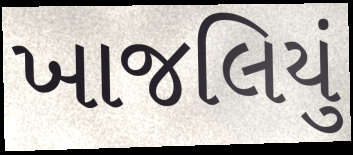
ખાજલિયું